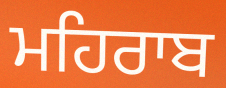
ਮਹਿਰਾਬ